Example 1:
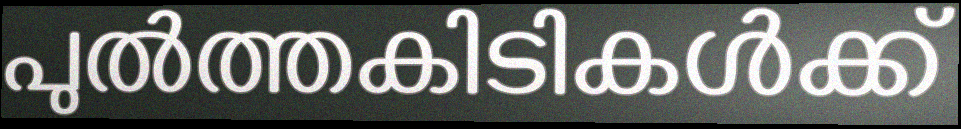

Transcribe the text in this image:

പുൽത്തകിടികൾക്ക്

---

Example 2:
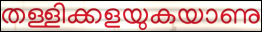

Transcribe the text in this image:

തള്ളിക്കളയുകയാണു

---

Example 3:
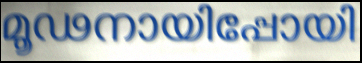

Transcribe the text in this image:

മൂഢനായിപ്പോയി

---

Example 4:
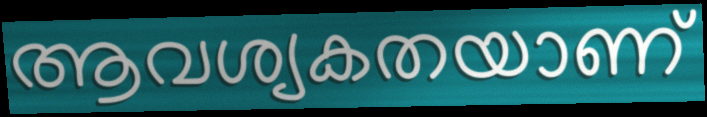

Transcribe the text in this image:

ആവശ്യകതയാണ്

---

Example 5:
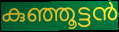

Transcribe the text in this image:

കുഞ്ഞൂട്ടൻ